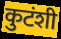
कुटंशी